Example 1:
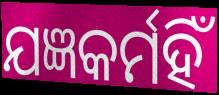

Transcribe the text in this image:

ଯଜ୍ଞକର୍ମହିଁ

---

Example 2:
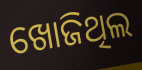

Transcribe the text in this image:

ଖୋଜିଥିଲ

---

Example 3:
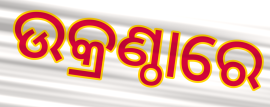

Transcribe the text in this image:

ଉକ୍ରଣ୍ଠାରେ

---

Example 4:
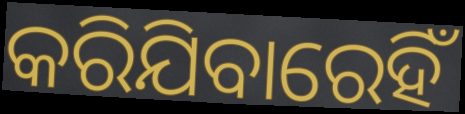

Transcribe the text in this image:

କରିଯିବାରେହିଁ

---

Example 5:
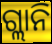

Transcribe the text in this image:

ଗ୍ଲାନି